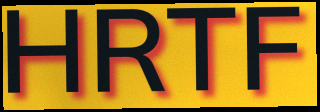
HRTF